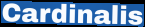
Cardinalis